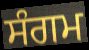
ਸੰਗਮ